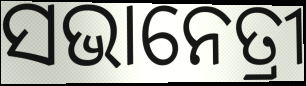
ସଭାନେତ୍ରୀ